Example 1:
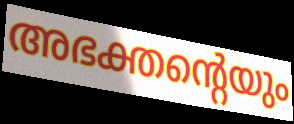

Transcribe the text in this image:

അഭക്തന്റെയും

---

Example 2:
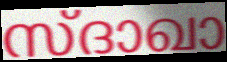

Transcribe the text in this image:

സ്ദാഖാ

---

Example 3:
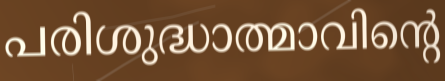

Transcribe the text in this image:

പരിശുദ്ധാത്മാവിന്റെ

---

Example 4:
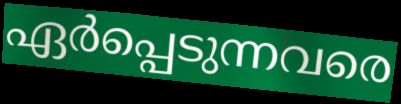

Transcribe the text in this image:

ഏർപ്പെടുന്നവരെ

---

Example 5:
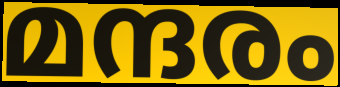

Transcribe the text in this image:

മന്ദരം